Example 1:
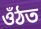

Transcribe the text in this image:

ওঁঠত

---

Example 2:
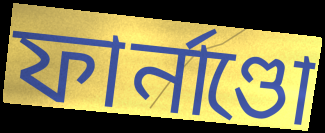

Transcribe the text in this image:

ফাৰ্নাণ্ডো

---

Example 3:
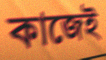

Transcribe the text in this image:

কাজেই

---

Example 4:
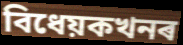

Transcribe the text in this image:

বিধেয়কখনৰ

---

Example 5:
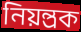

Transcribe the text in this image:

নিয়ন্ত্ৰক